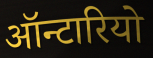
ऑन्टारियो